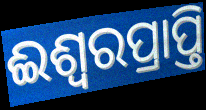
ଈଶ୍ଵରପ୍ରାପ୍ତି